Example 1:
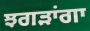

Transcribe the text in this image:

ਝਗੜਾਂਗਾ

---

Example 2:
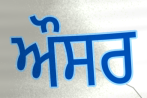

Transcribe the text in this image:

ਔਸਰ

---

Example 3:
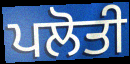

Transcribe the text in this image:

ਪਲੋਤੀ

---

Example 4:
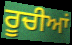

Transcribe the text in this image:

ਰੂਚੀਆਂ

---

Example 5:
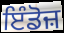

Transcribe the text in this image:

ਇੰਡੋਜ਼